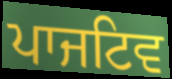
ਪਾਜਟਿਵ